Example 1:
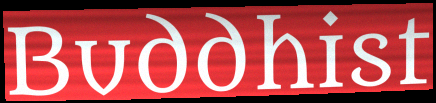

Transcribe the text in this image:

Buddhist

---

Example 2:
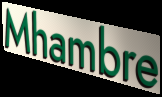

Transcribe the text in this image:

Mhambre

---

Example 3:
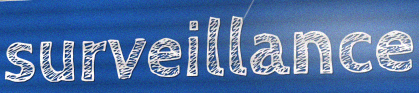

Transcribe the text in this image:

surveillance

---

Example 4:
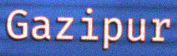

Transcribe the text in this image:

Gazipur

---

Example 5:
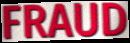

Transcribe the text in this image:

FRAUD